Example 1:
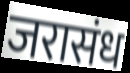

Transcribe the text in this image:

जरासंध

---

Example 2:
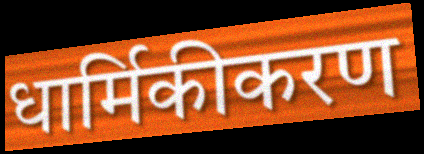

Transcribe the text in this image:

धार्मिकीकरण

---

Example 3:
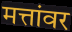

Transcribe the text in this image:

मत्तांवर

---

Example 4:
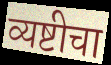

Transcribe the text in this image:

व्यष्टीचा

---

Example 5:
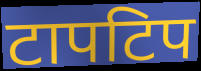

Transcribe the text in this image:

टापटिप